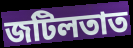
জটিলতাত